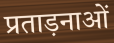
प्रताड़नाओं